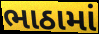
ભાઠામાં